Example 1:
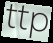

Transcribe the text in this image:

ttp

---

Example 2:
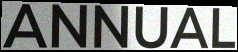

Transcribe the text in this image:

ANNUAL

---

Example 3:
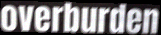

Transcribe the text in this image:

overburden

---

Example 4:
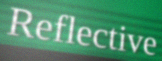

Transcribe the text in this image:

Reflective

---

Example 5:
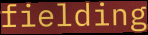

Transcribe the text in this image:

fielding